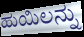
ಹುಯಿಲನ್ನು